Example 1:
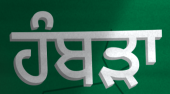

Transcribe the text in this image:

ਹੰਬਡ਼ਾ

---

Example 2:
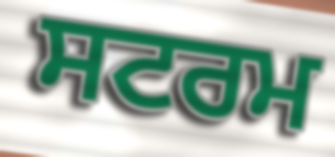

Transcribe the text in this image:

ਸਟਰਮ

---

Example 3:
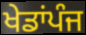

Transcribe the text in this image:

ਖੇਡਾਂਪੰਜ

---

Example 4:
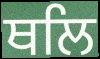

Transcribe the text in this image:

ਥਲਿ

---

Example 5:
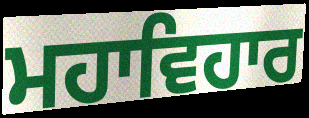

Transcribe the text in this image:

ਮਹਾਵਿਹਾਰ